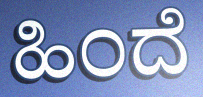
ಹಿಂದೆ